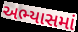
અભ્યાસમાં